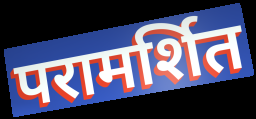
परामर्शित